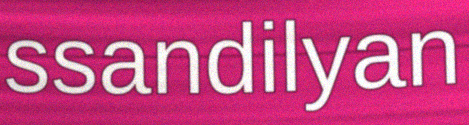
ssandilyan